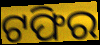
ଟଫିର